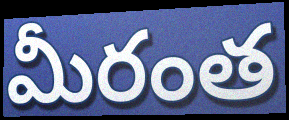
మీరంత